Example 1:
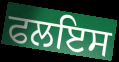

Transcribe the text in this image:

ਫਲਇਸ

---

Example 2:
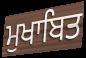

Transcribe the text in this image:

ਮੁਖਾਬਿਤ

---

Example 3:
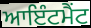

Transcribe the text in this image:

ਆਇੰਟਮੈਂਟ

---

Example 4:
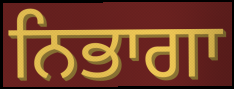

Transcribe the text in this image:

ਨਿਭਾਗਾ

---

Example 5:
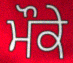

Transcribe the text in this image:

ਮੌਕੇ